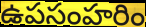
ఉపసంహరిం